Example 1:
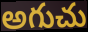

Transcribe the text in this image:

అగుచు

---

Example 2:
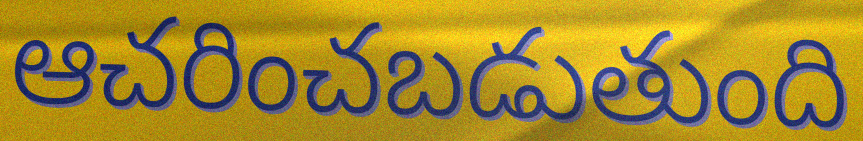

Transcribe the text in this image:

ఆచరించబడుతుంది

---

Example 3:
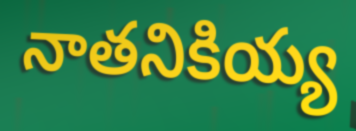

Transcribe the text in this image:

నాతనికియ్య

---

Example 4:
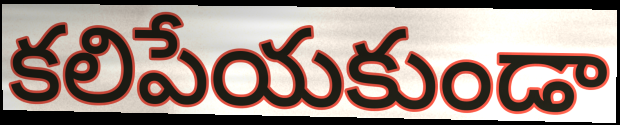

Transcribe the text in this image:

కలిపేయకుండా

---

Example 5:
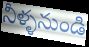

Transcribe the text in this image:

నీళ్ళనుండి